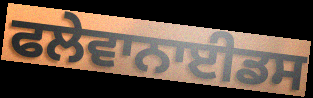
ਫਲੇਵਾਨਾਈਡਸ